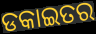
ଡକାଇତର